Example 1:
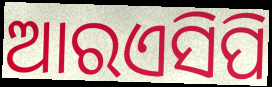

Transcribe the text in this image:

ଆରଏସିପି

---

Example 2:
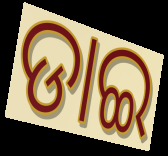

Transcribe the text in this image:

ଡାଇ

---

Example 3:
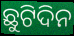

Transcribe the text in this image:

ଛୁଟିଦିନ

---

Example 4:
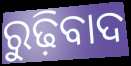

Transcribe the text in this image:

ରୁଢ଼ିବାଦ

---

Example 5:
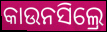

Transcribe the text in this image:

କାଉନସିଲ୍ରେ